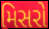
મિસરો